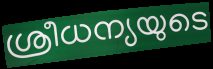
ശ്രീധന്യയുടെ